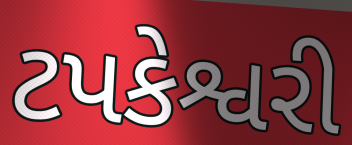
ટપકેશ્વરી